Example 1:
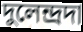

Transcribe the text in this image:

দুলেন্দ্রদা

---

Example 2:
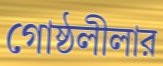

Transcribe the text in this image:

গোষ্ঠলীলার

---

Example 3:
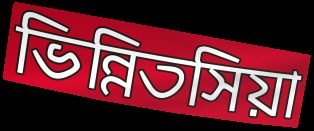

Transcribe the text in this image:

ভিন্নিতসিয়া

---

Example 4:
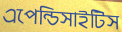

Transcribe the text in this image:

এপেন্ডিসাইটিস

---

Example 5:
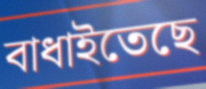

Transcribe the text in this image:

বাধাইতেছে